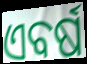
ଏବର୍ଷ